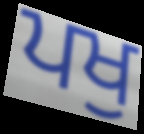
ਪਖੁ